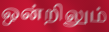
ஒன்றிலும்